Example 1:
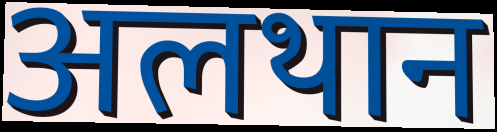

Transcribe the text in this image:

अलथान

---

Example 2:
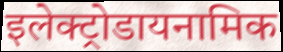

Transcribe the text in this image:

इलेक्ट्रोडायनामिक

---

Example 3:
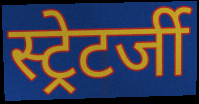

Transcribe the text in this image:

स्ट्रेटर्जी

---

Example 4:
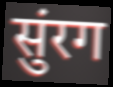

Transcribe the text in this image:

सुंरग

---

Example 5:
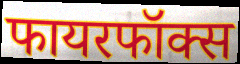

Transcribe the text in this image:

फायरफॉक्स